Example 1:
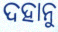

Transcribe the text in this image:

ଦହାନୁ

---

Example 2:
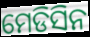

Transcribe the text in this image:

ମେଡିସିନ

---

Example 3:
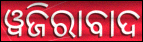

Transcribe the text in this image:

ୱଜିରାବାଦ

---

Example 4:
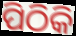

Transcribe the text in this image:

ପିଠିକି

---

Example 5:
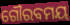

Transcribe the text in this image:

ଗୌରବମୟ